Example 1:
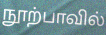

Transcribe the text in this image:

நூற்பாவில்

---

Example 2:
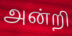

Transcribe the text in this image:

அன்றி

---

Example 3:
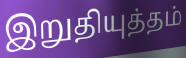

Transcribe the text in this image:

இறுதியுத்தம்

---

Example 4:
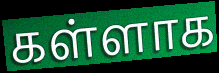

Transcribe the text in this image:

கள்ளாக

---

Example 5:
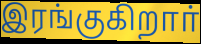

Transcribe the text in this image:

இரங்குகிறார்